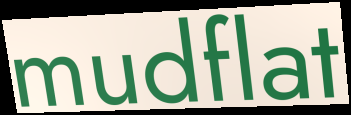
mudflat